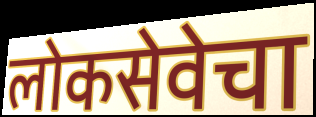
लोकसेवेचा